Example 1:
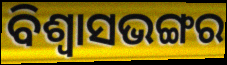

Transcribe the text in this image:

ବିଶ୍ଵାସଭଙ୍ଗର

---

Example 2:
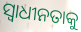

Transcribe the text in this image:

ସ୍ବାଧୀନତାକୁ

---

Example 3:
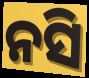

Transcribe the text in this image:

ନସି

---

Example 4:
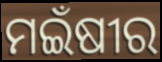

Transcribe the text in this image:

ମଇଁଷୀର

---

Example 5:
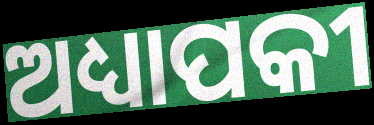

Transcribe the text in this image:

ଅଧ୍ୟାପକୀ